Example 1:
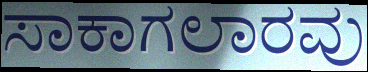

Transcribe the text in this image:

ಸಾಕಾಗಲಾರವು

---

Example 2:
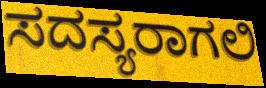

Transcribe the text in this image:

ಸದಸ್ಯರಾಗಲಿ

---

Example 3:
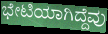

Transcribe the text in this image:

ಭೇಟಿಯಾಗಿದ್ದೆವು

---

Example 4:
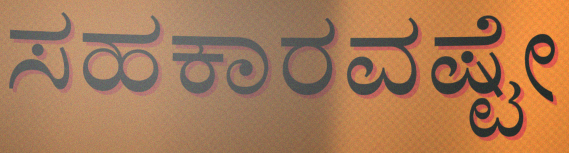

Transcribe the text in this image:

ಸಹಕಾರವಷ್ಟೇ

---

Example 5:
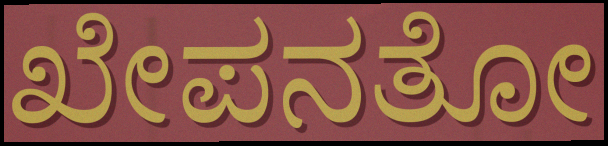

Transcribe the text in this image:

ಖೇಪನತೋ